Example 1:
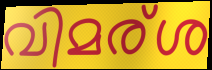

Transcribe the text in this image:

വിമര്ശ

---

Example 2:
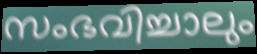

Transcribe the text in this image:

സംഭവിച്ചാലും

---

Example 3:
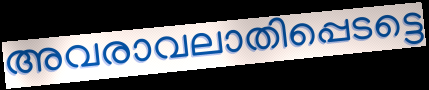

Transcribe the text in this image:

അവരാവലാതിപ്പെടട്ടെ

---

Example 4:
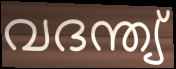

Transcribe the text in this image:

വദന്ത്യ്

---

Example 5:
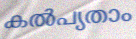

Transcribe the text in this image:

കൽപ്യതാം